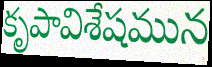
కృపావిశేషమున